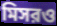
মিসরও